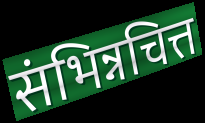
संभिन्नचित्त